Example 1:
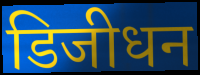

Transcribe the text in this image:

डिजीधन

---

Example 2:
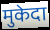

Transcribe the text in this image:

मुकेदा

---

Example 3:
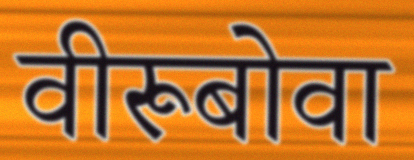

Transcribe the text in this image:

वीरूबोवा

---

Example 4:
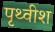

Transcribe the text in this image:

पृथ्वीश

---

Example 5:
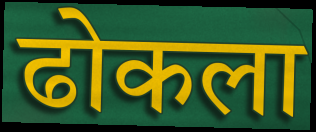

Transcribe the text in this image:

ढोकला